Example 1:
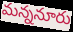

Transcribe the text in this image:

మన్ననూరు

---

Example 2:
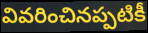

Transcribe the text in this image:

వివరించినప్పటికీ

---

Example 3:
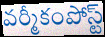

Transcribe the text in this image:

వర్మీకంపోస్ట్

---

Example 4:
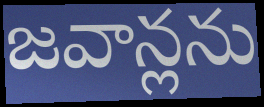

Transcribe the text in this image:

జవాన్లను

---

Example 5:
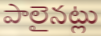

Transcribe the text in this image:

పాలైనట్లు